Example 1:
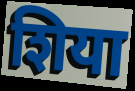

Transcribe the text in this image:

शिया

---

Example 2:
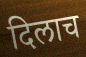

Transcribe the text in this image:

दिलाच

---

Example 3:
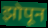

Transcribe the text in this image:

झोपून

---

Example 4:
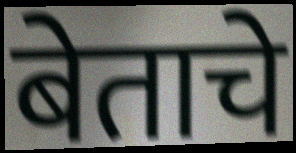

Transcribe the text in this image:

बेताचे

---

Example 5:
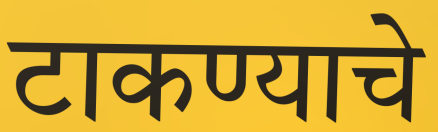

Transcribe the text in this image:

टाकण्याचे